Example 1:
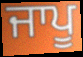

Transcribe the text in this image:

ਜਾਪੂ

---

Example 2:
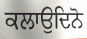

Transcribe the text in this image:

ਕਲਾਉਦਿਨੋ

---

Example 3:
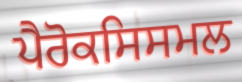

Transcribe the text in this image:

ਪੈਰੋਕਸਿਸਮਲ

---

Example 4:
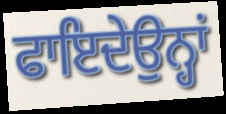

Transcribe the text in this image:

ਫਾਇਦੇਉਨ੍ਹਾਂ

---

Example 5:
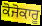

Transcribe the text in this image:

ਕੋਜੋਕਾਰੂ